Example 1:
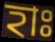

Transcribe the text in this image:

হাঃ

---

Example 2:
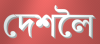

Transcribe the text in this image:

দেশলৈ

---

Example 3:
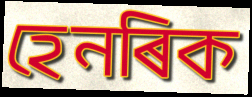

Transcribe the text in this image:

হেনৰিক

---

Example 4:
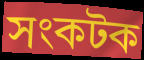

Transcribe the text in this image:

সংকটক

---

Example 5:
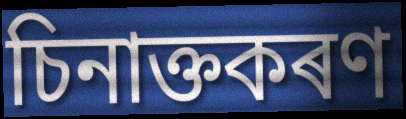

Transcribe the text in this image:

চিনাক্তকৰণ